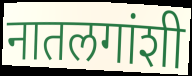
नातलगांशी